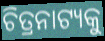
ଚିତ୍ରନାଟ୍ୟକୁ